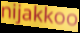
nijakkoo